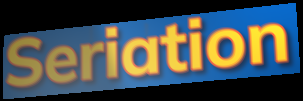
Seriation